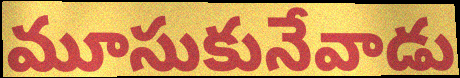
మూసుకునేవాడు